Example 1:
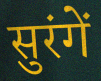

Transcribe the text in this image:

सुरंगें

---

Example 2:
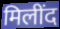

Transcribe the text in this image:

मिलींद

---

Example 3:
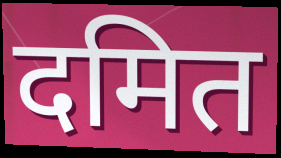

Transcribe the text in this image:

दमित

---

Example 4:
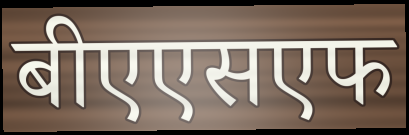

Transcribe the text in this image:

बीएएसएफ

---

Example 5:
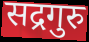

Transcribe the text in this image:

सद्रगुरु